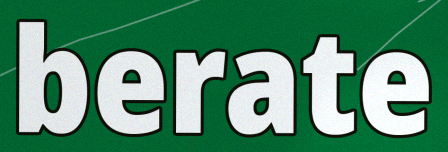
berate